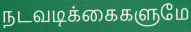
நடவடிக்கைகளுமே